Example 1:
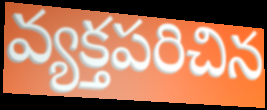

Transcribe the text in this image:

వ్యక్తపరిచిన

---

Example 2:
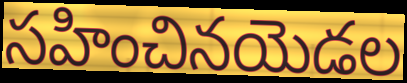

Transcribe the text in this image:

సహించినయెడల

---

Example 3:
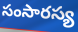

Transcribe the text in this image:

సంసారస్య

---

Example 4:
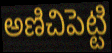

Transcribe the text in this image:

అణిచిపెట్టి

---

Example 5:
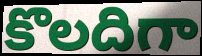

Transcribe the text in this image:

కొలదిగా